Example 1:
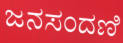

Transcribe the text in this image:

ಜನಸಂದಣಿ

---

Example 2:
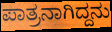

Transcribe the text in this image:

ಪಾತ್ರನಾಗಿದ್ದನು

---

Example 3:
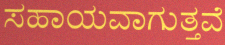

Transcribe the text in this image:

ಸಹಾಯವಾಗುತ್ತವೆ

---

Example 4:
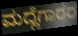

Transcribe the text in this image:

ಮದ್ಲೆಗಾರರ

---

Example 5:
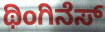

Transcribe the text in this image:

ಥಿಂಗಿನೆಸ್